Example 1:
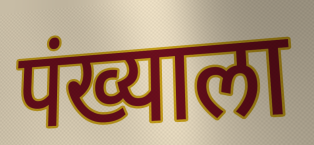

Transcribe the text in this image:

पंख्याला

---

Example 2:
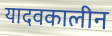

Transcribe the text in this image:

यादवकालीन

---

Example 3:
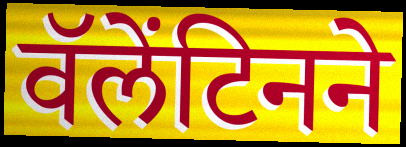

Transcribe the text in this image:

वॅलेंटिनने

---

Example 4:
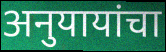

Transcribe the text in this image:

अनुयायांचा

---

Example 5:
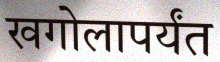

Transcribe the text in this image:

खगोलापर्यंत